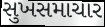
સુખસમાચાર